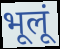
भूलूं